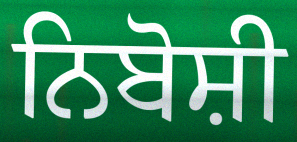
ਨਿਬੋਸ਼ੀ